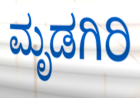
ಮೃಡಗಿರಿ